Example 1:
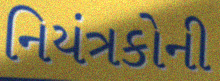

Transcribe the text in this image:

નિયંત્રકોની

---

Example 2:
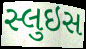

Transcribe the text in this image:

સ્લુઇસ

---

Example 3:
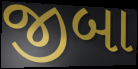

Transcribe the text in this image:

જીબા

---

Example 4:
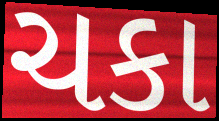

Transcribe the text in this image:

ચકા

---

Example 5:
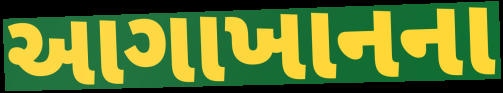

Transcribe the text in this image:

આગાખાનના